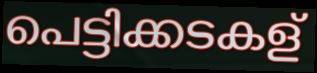
പെട്ടിക്കടകള്